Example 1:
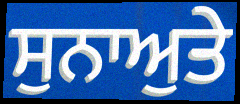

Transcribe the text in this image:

ਸੁਨਾਅੁਤੇ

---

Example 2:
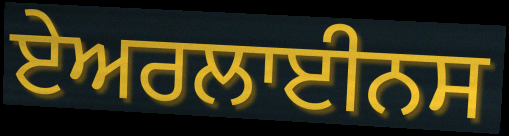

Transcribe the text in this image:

ਏਅਰਲਾਈਨਸ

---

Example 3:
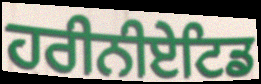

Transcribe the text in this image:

ਹਰੀਨੀਏਟਿਡ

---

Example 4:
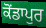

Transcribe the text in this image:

ਕੋਂਡਾਪੁਰ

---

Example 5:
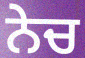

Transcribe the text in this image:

ਨੇਚ